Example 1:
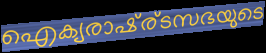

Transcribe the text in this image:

ഐക്യരാഷ്ര്ടസഭയുടെ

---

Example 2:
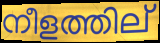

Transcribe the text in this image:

നീളത്തില്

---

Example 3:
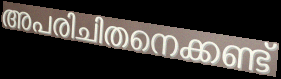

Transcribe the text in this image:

അപരിചിതനെക്കണ്ട്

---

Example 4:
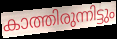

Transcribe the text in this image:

കാത്തിരുന്നിട്ടും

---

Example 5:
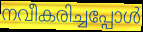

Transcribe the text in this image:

നവീകരിച്ചപ്പോൾ